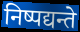
निष्पद्यन्ते